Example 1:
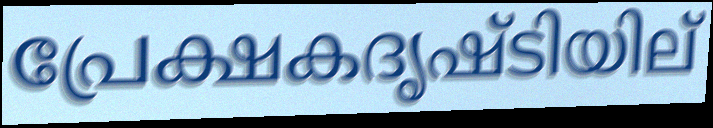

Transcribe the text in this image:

പ്രേക്ഷകദൃഷ്ടിയില്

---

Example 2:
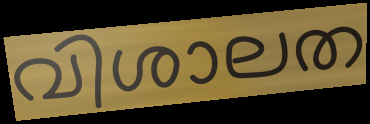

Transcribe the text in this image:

വിശാലത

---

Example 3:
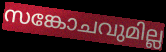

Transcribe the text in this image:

സങ്കോചവുമില്ല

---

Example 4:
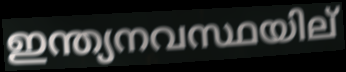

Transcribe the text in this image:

ഇന്ത്യനവസ്ഥയില്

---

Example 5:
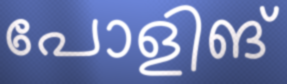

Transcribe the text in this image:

പോളിങ്